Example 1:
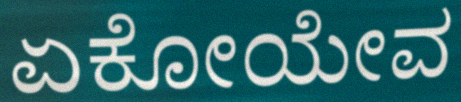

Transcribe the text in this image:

ಏಕೋಯೇವ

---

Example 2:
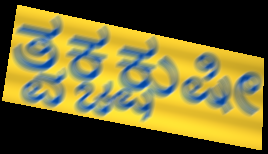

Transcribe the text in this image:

ತ್ವಕ್ಚಕ್ಷುಷೀ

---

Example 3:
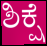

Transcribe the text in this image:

ಶಿಕ್ಷೆ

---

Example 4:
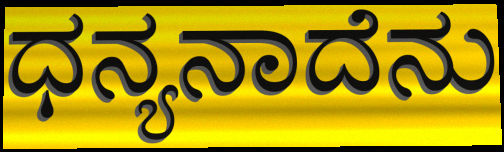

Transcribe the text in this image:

ಧನ್ಯನಾದೆನು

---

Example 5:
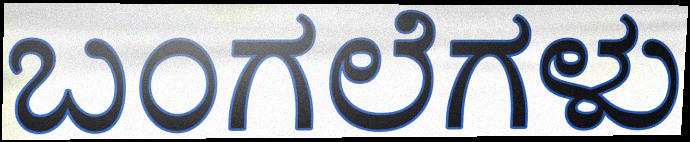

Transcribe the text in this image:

ಬಂಗಲೆಗಳು